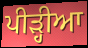
ਪੀੜ੍ਹੀਆ